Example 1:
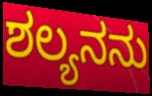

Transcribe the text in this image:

ಶಲ್ಯನನು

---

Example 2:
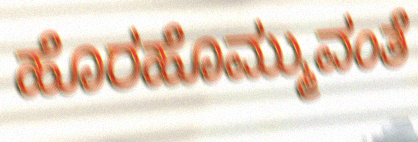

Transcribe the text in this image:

ಹೊರಹೊಮ್ಮುವಂತೆ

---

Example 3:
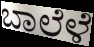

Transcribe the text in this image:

ಬಾಲೆಳೆ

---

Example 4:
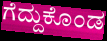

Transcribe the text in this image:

ಗೆದ್ದುಕೊಂಡ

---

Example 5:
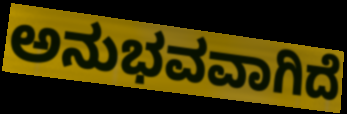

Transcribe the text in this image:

ಅನುಭವವಾಗಿದೆ